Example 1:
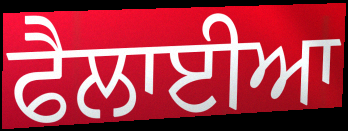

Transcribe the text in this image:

ਫੈਲਾਈਆ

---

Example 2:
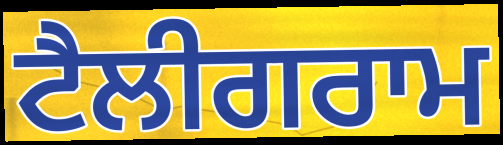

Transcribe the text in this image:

ਟੈਲੀਗਰਾਮ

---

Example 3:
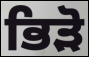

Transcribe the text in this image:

ਭਿੜੋ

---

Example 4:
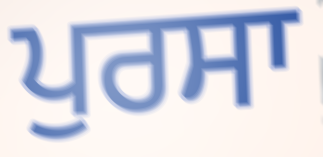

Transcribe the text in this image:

ਪੁਰਸਾ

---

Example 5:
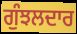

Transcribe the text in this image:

ਗੁੰਝਲਦਾਰ